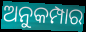
ଅନୁକମ୍ପାର